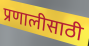
प्रणालीसाठी